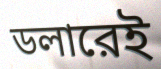
ডলারেই